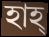
হাহ্